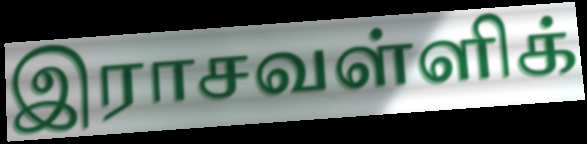
இராசவள்ளிக்